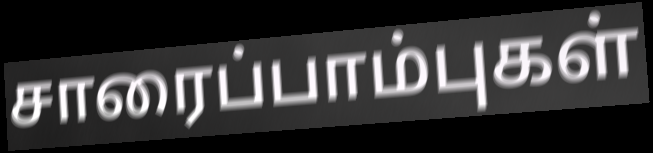
சாரைப்பாம்புகள்